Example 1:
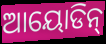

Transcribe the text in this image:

ଆୟୋଡିନ୍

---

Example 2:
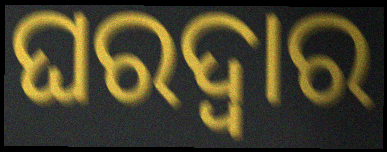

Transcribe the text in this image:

ଘରଦ୍ବାର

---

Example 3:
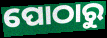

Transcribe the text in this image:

ପୋଠାରୁ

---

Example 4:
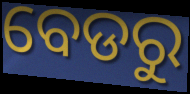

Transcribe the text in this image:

ବେଡରୁ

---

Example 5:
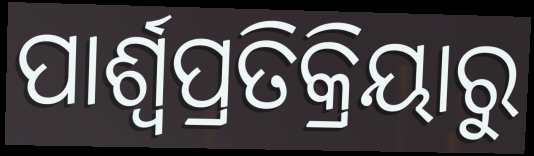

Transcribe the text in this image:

ପାର୍ଶ୍ୱପ୍ରତିକ୍ରିୟାରୁ